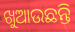
ଖୁଆଉଛନ୍ତି